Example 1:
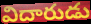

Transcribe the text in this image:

విదారుడు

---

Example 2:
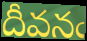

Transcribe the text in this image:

దీవనఁ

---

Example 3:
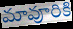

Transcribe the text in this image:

మావూరికి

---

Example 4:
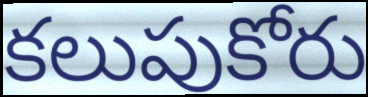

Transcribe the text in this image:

కలుపుకోరు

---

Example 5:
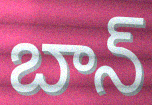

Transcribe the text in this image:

బాన్